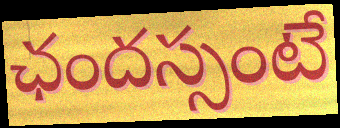
ఛందస్సంటే